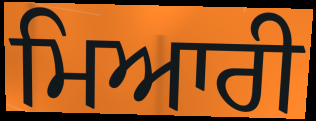
ਮਿਆਰੀ